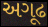
અગૂઢ